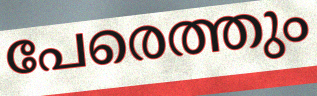
പേരെത്തും